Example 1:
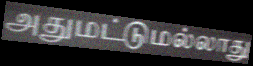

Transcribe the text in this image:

அதுமட்டுமல்லாது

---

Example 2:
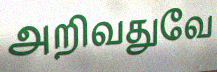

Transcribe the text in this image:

அறிவதுவே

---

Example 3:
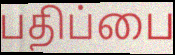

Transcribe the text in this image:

பதிப்பை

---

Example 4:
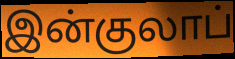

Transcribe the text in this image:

இன்குலாப்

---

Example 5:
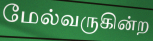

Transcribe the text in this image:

மேல்வருகின்ற